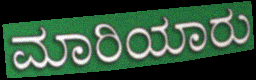
ಮಾರಿಯಾರು